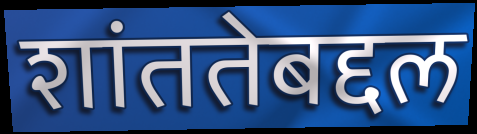
शांततेबद्दल